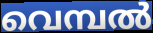
വെമ്പൽ